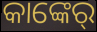
କାଙ୍କେର୍